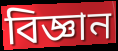
বিজ্ঞান